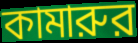
কামারুর